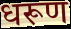
धरूण